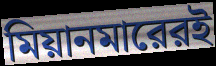
মিয়ানমারেরই